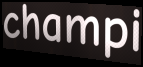
champi